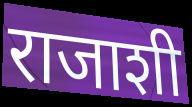
राजाशी